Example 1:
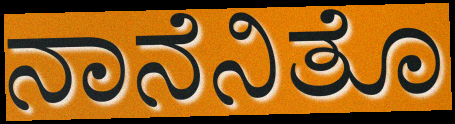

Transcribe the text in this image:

ನಾನೆನಿತೊ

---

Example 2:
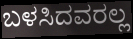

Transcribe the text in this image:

ಬಳಸಿದವರಲ್ಲ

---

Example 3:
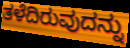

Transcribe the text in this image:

ತಳೆದಿರುವುದನ್ನು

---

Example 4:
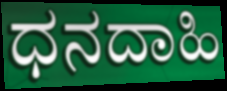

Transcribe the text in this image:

ಧನದಾಹಿ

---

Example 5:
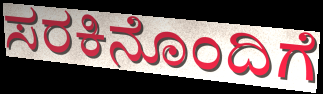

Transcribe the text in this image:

ಸರಕಿನೊಂದಿಗೆ